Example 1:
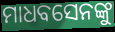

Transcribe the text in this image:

ମାଧବସେନଙ୍କୁ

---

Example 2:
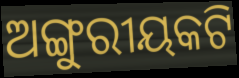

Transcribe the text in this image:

ଅଙ୍ଗୁରୀୟକଟି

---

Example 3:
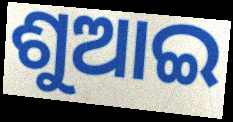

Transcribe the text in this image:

ଶୁଆଇ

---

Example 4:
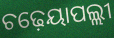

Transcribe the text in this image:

ଚଢ଼େୟାପଲ୍ଲୀ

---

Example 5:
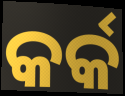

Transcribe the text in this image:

କର୍କ